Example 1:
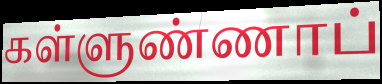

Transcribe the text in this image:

கள்ளுண்ணாப்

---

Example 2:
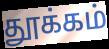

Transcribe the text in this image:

தூக்கம்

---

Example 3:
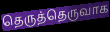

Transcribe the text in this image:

தெருத்தெருவாக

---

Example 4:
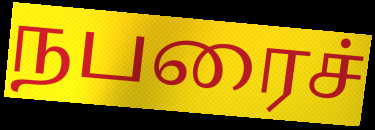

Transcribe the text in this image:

நபரைச்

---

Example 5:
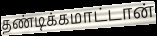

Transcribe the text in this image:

தண்டிக்கமாட்டான்